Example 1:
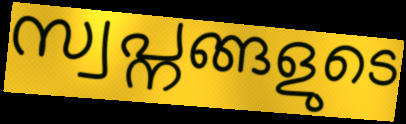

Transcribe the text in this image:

സ്വപ്നങ്ങളുടെ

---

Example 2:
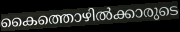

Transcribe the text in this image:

കൈത്തൊഴിൽക്കാരുടെ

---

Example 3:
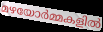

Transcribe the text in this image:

മഴയോർമ്മകളിൽ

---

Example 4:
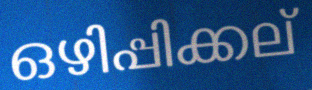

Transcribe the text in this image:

ഒഴിപ്പിക്കല്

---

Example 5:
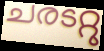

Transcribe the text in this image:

ചരടറ്റു